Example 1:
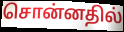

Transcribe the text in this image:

சொன்னதில்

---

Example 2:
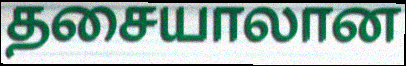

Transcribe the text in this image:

தசையாலான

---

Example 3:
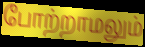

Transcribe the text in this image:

போற்றாமலும்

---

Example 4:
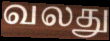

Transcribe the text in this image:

வலது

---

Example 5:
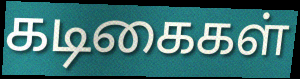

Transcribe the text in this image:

கடிகைகள்